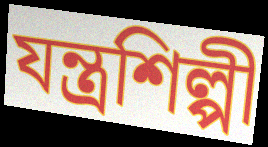
যন্ত্রশিল্পী